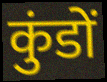
कुंडों